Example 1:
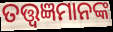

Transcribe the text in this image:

ତତ୍ତ୍ୱଜ୍ଞମାନଙ୍କ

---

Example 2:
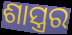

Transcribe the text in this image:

ଶାସ୍ତ୍ରର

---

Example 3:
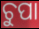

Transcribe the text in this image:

ଚୁପା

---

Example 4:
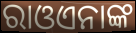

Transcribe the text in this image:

ରାଓଏନାଙ୍କ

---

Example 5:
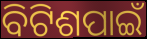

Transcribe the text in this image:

ବିଟିଶପାଇଁ